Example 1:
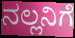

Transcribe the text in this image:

ನಲ್ಲನಿಗೆ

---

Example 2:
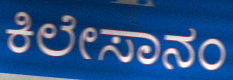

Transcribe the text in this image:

ಕಿಲೇಸಾನಂ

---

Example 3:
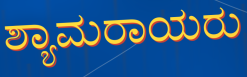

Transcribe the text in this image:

ಶ್ಯಾಮರಾಯರು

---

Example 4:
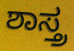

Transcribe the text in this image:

ಶಾಸ್ತ್ರ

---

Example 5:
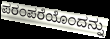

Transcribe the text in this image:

ಪರಂಪರೆಯೊಂದನ್ನು